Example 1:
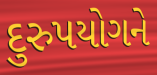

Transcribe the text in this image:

દુરુપયોગને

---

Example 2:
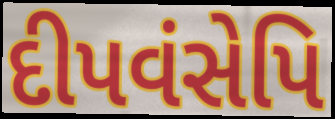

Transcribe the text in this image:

દીપવંસેપિ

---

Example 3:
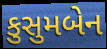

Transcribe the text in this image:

કુસુમબેન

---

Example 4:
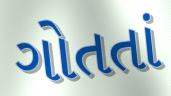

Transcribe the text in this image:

ગોતતાં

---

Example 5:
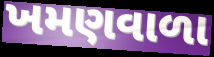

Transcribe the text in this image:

ખમણવાળા